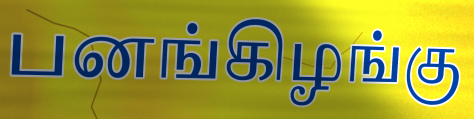
பனங்கிழங்கு